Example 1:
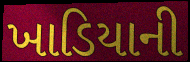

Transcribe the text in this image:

ખાડિયાની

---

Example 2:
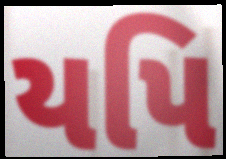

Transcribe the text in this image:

યપિ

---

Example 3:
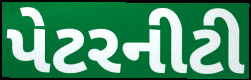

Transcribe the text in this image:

પેટરનીટી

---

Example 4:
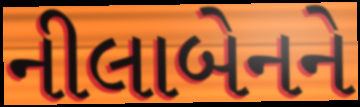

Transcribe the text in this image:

નીલાબેનને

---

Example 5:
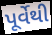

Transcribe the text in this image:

પૂર્વેથી